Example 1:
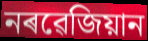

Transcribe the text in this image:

নৰৱেজিয়ান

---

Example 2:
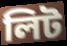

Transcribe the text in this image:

লিট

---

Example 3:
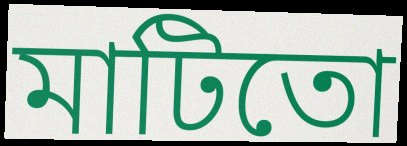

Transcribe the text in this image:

মাটিতো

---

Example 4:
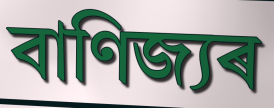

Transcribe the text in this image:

বাণিজ্যৰ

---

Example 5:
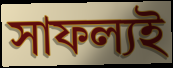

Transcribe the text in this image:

সাফল্যই